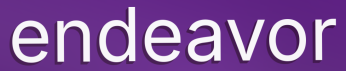
endeavor